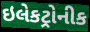
ઇલેકટ્રોનીક